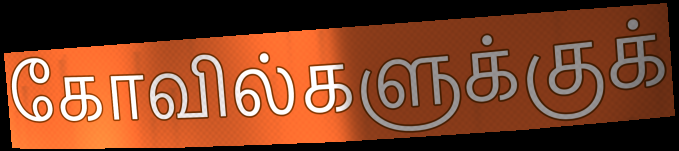
கோவில்களுக்குக்